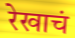
रेखाचं